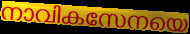
നാവികസേനയെ